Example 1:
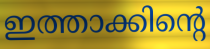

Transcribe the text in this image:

ഇത്താക്കിന്റെ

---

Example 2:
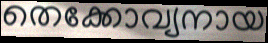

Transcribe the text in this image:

തെക്കോവ്യനായ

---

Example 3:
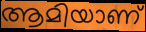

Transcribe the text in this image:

ആമിയാണ്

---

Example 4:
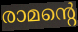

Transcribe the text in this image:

രാമന്റെ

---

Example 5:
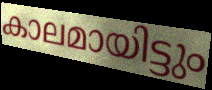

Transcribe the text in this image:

കാലമായിട്ടും